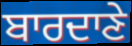
ਬਾਰਦਾਣੇ